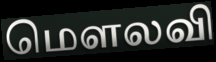
மௌலவி